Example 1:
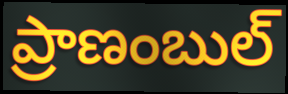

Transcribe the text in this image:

ప్రాణంబుల్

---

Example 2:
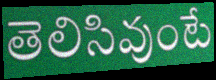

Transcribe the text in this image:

తెలిసివుంటే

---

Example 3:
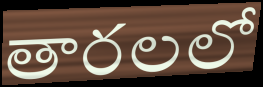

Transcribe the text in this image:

తారలలో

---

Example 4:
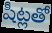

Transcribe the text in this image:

షీట్లతో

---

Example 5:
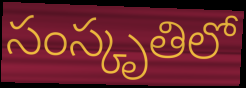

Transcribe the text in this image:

సంస్కృతిలో